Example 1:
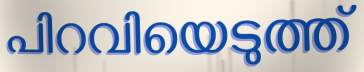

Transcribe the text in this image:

പിറവിയെടുത്ത്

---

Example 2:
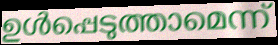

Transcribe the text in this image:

ഉൾപ്പെടുത്താമെന്ന്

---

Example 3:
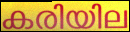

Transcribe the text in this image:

കരിയില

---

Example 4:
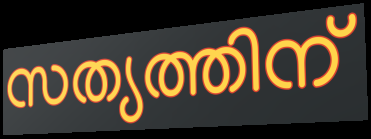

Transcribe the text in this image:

സത്യത്തിന്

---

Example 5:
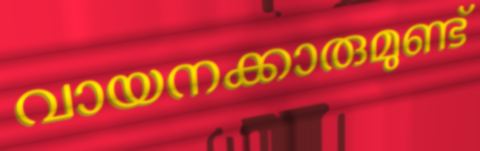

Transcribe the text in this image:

വായനക്കാരുമുണ്ട്